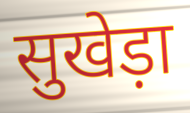
सुखेड़ा